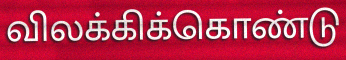
விலக்கிக்கொண்டு